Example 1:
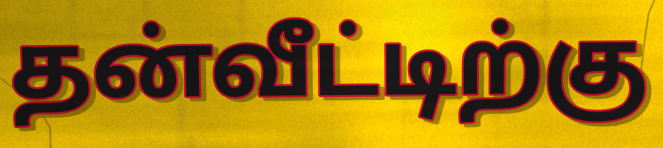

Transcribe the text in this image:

தன்வீட்டிற்கு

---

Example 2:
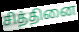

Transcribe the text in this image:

சித்தினை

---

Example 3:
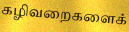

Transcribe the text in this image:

கழிவறைகளைக்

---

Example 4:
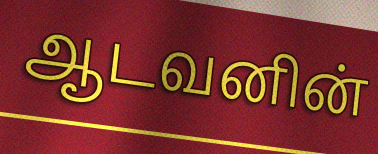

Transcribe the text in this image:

ஆடவனின்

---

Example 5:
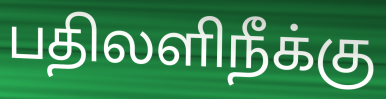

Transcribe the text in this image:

பதிலளிநீக்கு